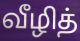
வீழித்